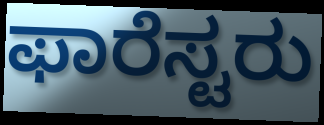
ಫಾರೆಸ್ಟರು